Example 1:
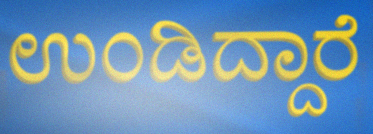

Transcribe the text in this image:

ಉಂಡಿದ್ದಾರೆ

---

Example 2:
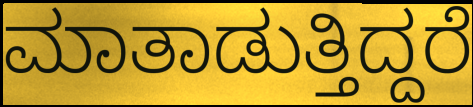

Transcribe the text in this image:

ಮಾತಾಡುತ್ತಿದ್ದರೆ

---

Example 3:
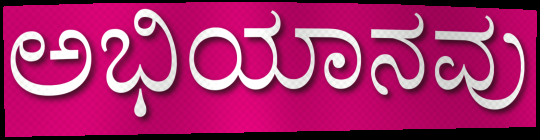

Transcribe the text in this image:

ಅಭಿಯಾನವು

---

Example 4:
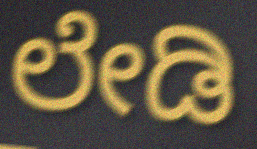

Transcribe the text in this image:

ಲೇಡಿ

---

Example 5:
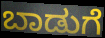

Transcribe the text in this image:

ಬಾಡುಗೆ